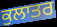
ਕੁਲਾਤਰ